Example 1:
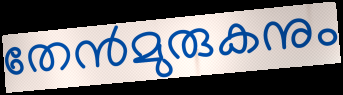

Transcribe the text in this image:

തേൻമുരുകനും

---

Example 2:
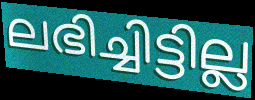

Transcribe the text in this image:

ലഭിച്ചിട്ടില്ല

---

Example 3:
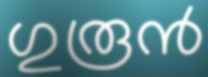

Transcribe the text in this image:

ഗുരൂൻ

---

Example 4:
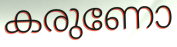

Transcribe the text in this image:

കരുണോ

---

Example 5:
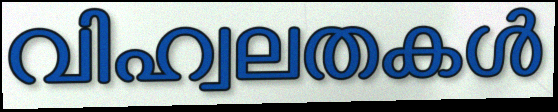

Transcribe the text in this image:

വിഹ്വലതകൾ